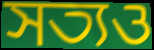
সত্যও